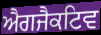
ਐਗਜੈਕਟਿਵ